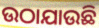
ଉଠାଯାଉଛି